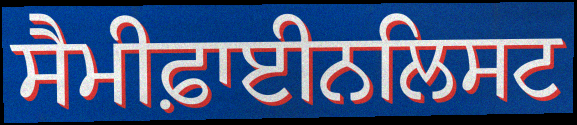
ਸੈਮੀਫ਼ਾਈਨਲਿਸਟ